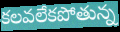
కలవలేకపోతున్న